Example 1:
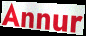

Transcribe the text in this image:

Annur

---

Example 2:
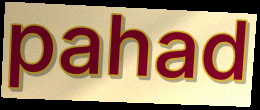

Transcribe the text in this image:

pahad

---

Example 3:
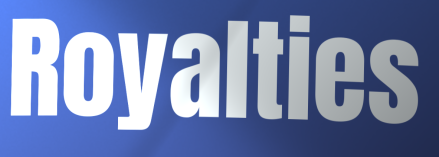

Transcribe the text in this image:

Royalties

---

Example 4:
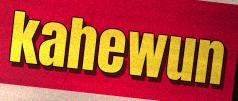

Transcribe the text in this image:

kahewun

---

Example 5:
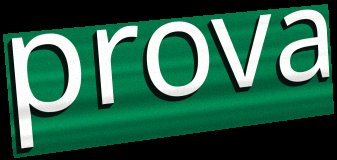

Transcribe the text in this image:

prova